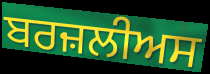
ਬਰਜ਼ਲੀਅਸ